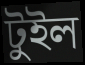
টুইল